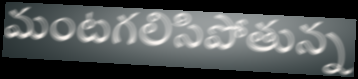
మంటగలిసిపోతున్న